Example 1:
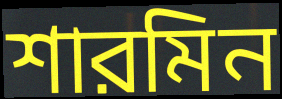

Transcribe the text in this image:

শারমিন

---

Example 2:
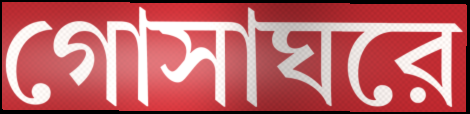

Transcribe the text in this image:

গোসাঘরে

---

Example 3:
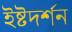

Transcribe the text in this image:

ইষ্টদর্শন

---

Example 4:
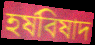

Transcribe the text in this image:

হর্ষবিষাদ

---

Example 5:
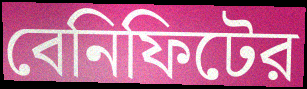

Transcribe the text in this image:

বেনিফিটের